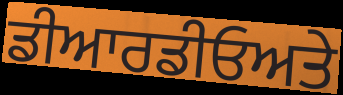
ਡੀਆਰਡੀਓਅਤੇ